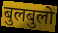
बुलबुलो